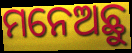
ମନେଅଛୁ